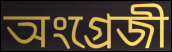
অংগ্ৰেজী